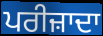
ਪਰੀਜ਼ਾਦਾ